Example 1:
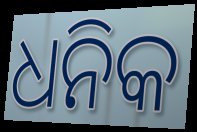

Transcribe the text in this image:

ଧନିକ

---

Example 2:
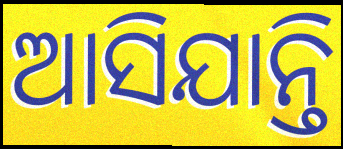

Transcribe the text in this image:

ଆସିଯାନ୍ତି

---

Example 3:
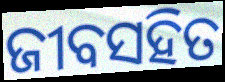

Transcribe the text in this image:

ଜୀବସହିତ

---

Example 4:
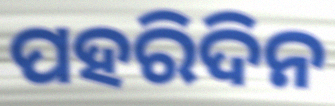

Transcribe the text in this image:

ପହରିଦିନ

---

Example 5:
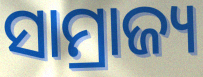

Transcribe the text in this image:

ସାମ୍ରାଜ୍ୟ